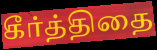
கீர்த்திதை